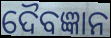
ଦୈବଜ୍ଞାନ